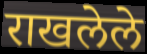
राखलेले